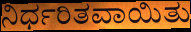
ನಿರ್ಧರಿತವಾಯಿತು